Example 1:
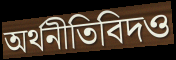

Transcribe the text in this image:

অর্থনীতিবিদও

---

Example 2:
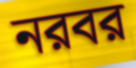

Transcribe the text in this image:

নরবর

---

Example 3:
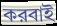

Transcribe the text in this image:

করবাই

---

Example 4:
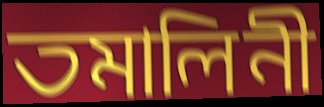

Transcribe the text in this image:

তমালিনী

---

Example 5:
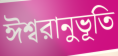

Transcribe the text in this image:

ঈশ্বরানুভূতি